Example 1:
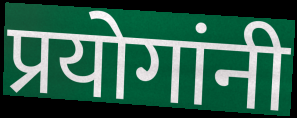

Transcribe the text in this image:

प्रयोगांनी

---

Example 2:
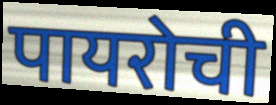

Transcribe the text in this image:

पायरोची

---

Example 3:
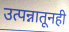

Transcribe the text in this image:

उत्पन्नातूनही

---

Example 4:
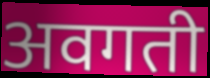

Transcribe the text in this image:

अवगती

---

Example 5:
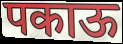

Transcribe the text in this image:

पकाऊ